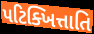
પટિક્ખિત્તાતિ